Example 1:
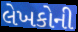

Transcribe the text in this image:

લેખકોની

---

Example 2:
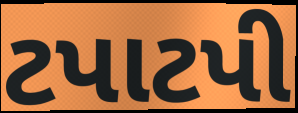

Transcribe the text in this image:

ટપાટપી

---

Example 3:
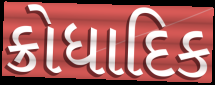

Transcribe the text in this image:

ક્રોધાદિક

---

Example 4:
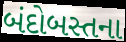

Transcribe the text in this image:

બંદોબસ્તના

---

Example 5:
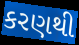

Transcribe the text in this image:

કરણથી